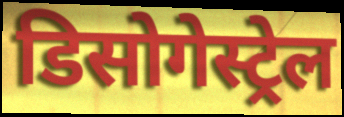
डिसोगेस्ट्रेल